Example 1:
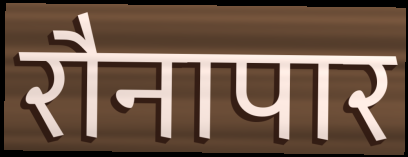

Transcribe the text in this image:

रौनापार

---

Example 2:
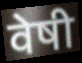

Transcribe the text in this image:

वेषी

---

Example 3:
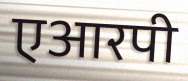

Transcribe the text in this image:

एआरपी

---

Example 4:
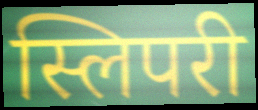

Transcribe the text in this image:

स्लिपरी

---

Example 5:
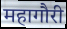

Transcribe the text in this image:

महागौरी